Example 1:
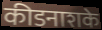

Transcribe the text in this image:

कीडनाशके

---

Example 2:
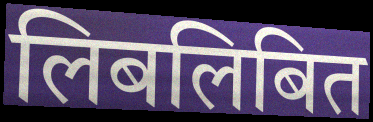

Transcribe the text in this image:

लिबलिबित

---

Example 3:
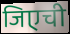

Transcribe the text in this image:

जिएची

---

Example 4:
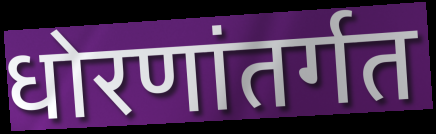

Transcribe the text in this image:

धोरणांतर्गत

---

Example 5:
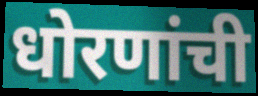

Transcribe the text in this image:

धोरणांची